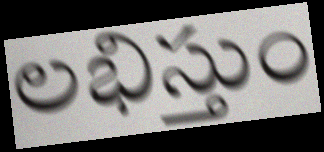
లభిస్తుం